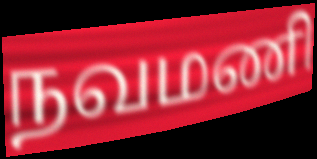
நவமணி